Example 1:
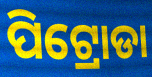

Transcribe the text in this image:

ପିଟ୍ରୋଡା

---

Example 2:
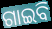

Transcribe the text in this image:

ଗାଇବି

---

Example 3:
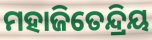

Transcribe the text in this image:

ମହାଜିତେନ୍ଦ୍ରିୟ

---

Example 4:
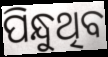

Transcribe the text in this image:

ପିନ୍ଧୁଥିବ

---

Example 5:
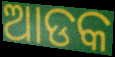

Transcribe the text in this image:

ଆଡକ